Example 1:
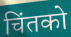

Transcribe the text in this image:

चिंतको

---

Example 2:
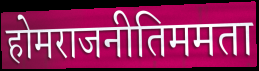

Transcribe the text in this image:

होमराजनीतिममता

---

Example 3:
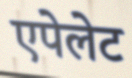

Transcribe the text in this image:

एपेलेट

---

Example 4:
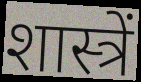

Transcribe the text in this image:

शास्त्रें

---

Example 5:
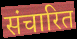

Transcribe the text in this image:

संचारित